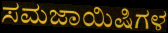
ಸಮಜಾಯಿಷಿಗಳ